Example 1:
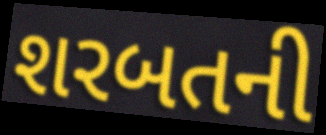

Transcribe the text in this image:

શરબતની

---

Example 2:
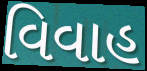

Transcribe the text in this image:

વિવાહ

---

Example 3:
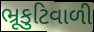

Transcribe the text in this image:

ભ્રૂકુટિવાળી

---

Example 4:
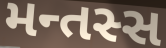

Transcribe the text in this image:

મન્તસ્સ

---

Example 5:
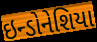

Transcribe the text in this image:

ઇન્ડોનેશિયા